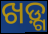
ଖଡ଼୍ଗ